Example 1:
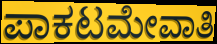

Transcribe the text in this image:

ಪಾಕಟಮೇವಾತಿ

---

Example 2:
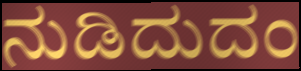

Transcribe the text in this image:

ನುಡಿದುದಂ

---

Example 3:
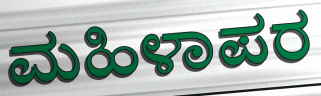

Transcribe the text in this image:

ಮಹಿಳಾಪರ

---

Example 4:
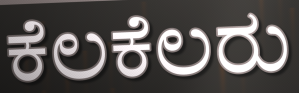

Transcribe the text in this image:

ಕೆಲಕೆಲರು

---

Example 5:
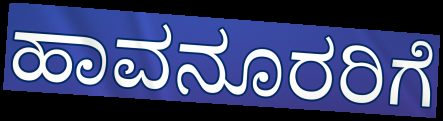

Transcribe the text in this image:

ಹಾವನೂರರಿಗೆ